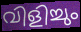
വിളിച്ചും